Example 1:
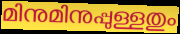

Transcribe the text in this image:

മിനുമിനുപ്പുള്ളതും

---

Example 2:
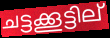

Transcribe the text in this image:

ചട്ടക്കൂട്ടില്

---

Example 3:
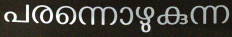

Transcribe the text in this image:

പരന്നൊഴുകുന്ന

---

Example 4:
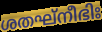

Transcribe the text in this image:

ശതഘ്നീഭിഃ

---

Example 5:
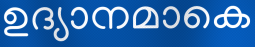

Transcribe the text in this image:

ഉദ്യാനമാകെ